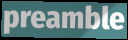
preamble